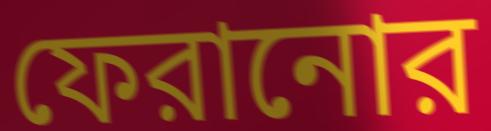
ফেরানোর